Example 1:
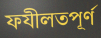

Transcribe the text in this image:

ফযীলতপূর্ণ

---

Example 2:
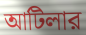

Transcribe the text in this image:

আটিলার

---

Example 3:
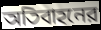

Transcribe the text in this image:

অতিবাহনের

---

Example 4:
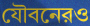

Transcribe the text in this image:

যৌবনেরও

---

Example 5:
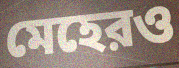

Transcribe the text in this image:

মেহেরও